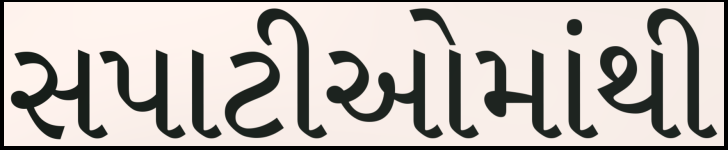
સપાટીઓમાંથી